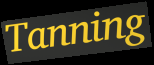
Tanning